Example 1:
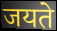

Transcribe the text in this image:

जयते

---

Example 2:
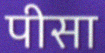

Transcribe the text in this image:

पीसा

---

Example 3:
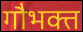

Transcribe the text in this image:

गौभक्त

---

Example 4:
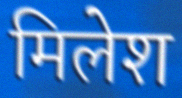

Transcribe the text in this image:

मिलेश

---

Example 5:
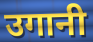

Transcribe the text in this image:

उगानी